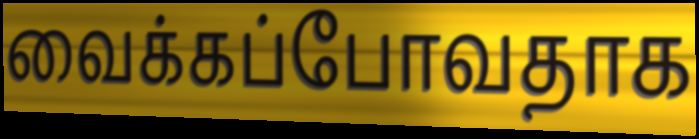
வைக்கப்போவதாக